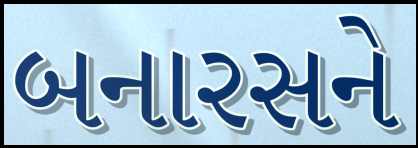
બનારસને